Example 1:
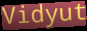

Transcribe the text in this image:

Vidyut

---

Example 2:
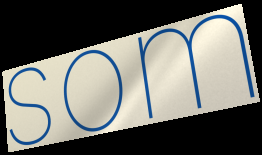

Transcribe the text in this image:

som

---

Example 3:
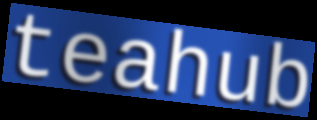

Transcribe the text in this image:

teahub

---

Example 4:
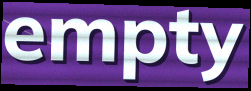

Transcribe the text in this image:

empty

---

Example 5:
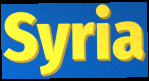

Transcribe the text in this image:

Syria